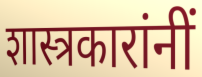
शास्त्रकारांनीं